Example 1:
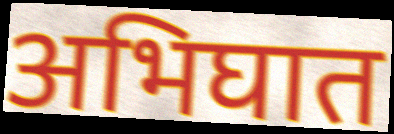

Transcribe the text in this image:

अभिघात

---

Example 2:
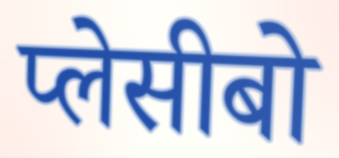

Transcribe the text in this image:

प्लेसीबो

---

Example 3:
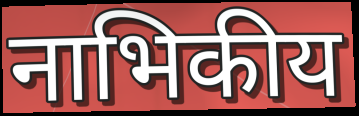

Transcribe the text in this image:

नाभिकीय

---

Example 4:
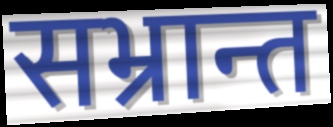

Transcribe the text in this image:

सभ्रान्त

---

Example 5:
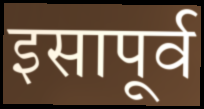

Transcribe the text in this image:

इसापूर्व